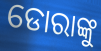
ଡୋରାଙ୍କୁ